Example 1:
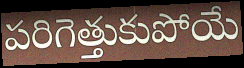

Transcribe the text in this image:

పరిగెత్తుకుపోయే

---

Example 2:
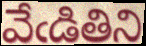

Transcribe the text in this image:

వేఁడితిని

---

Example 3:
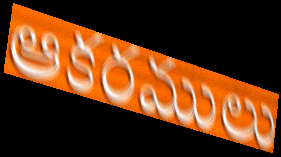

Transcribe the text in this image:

ఆకరములు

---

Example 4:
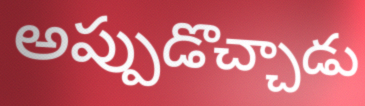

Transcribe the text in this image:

అప్పుడొచ్చాడు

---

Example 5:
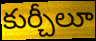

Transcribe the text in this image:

కుర్చీలూ